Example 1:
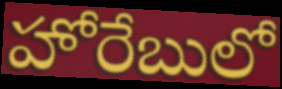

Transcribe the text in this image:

హోరేబులో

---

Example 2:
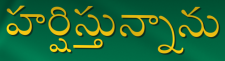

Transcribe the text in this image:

హర్షిస్తున్నాను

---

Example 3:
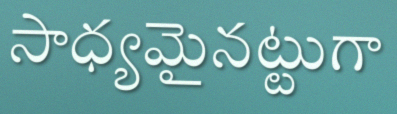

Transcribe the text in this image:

సాధ్యమైనట్టుగా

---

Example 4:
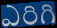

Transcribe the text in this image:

ఎరిగి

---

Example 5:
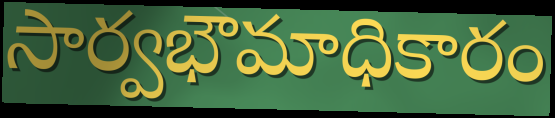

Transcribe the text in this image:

సార్వభౌమాధికారం